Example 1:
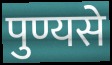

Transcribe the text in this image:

पुण्यसे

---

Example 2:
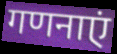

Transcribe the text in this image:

गणनाएं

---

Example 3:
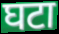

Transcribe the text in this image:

घटा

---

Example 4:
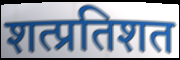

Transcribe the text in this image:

शत्प्रतिशत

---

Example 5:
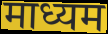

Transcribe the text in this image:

माध्यम